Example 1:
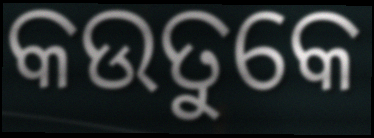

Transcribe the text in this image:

କଉତୁକେ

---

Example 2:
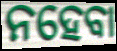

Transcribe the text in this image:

ନହେବା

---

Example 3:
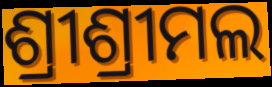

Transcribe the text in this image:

ଶ୍ରୀଶ୍ରୀମଲ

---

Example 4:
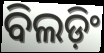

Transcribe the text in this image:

ବିଲଡ଼ିଂ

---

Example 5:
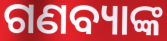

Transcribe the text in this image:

ଗଣବ୍ୟାଙ୍କ